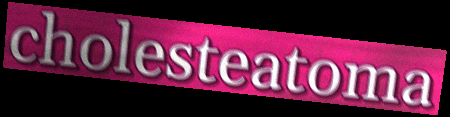
cholesteatoma